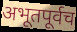
अभूतपूर्वच